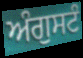
ਅੰਗੁਸਟੰ